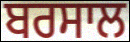
ਬਰਸਾਲ